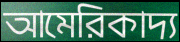
আমেরিকাদ্য